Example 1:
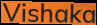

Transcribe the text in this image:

Vishaka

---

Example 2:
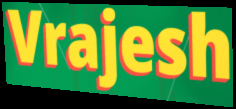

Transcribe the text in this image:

Vrajesh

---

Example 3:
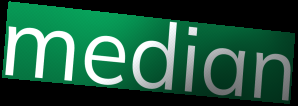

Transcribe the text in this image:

median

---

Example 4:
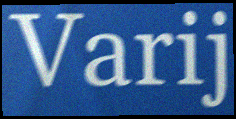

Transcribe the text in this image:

Varij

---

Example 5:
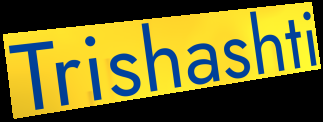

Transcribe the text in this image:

Trishashti